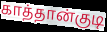
காத்தான்குடி